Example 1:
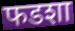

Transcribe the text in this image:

फडशा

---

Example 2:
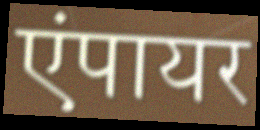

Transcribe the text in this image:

एंपायर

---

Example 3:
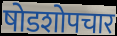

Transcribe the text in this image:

षोडशोपचार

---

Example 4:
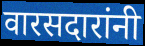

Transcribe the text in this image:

वारसदारांनी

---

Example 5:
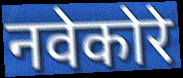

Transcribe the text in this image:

नवेकोरे